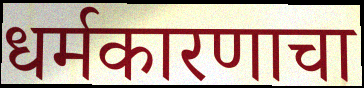
धर्मकारणाचा